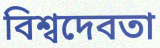
বিশ্বদেবতা